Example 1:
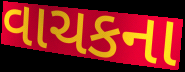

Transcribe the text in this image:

વાચકના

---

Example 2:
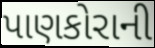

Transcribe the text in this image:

પાણકોરાની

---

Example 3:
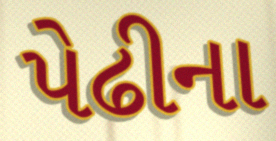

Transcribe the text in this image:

પેઢીના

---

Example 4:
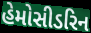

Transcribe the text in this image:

હેમોસીડરિન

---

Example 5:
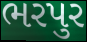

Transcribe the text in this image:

ભરપુર